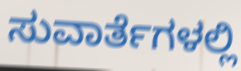
ಸುವಾರ್ತೆಗಳಲ್ಲಿ